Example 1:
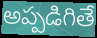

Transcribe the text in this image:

అప్పడిగితే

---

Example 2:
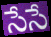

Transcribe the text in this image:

సేసే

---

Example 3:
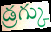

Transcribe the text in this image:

డ్రగ్కు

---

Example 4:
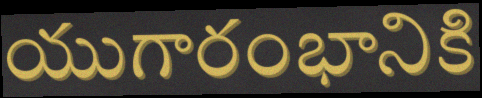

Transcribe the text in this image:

యుగారంభానికి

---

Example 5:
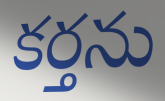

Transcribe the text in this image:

కర్తను